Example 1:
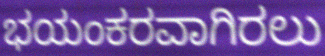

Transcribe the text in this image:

ಭಯಂಕರವಾಗಿರಲು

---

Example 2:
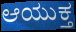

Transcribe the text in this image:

ಆಯುಕ್ತ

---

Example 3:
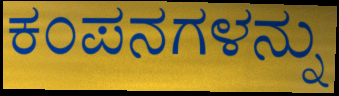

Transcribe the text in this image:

ಕಂಪನಗಳನ್ನು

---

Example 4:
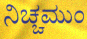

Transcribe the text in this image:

ನಿಚ್ಚಮುಂ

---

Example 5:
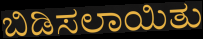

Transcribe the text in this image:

ಬಿಡಿಸಲಾಯಿತು